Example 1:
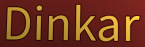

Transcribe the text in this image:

Dinkar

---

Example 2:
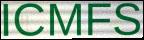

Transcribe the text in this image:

ICMFS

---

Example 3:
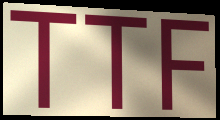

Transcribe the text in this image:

TTF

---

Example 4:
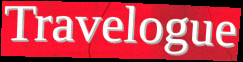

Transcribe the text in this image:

Travelogue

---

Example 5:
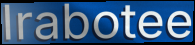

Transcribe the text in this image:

Irabotee